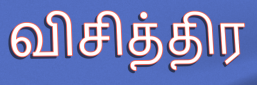
விசித்திர